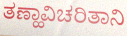
ತಣ್ಹಾವಿಚರಿತಾನಿ